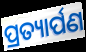
ପ୍ରତ୍ୟାର୍ପଣ